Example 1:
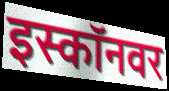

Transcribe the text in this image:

इस्कॉनवर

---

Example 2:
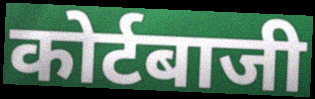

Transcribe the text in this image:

कोर्टबाजी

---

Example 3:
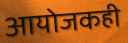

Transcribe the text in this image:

आयोजकही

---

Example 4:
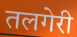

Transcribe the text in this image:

तलगेरी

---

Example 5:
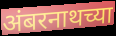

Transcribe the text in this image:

अंबरनाथच्या